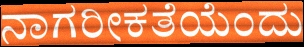
ನಾಗರೀಕತೆಯೆಂದು